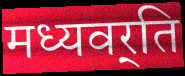
मध्यवर्ति